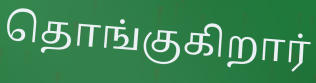
தொங்குகிறார்